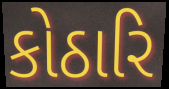
કોઠારિ